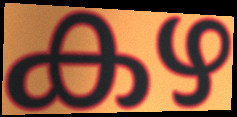
കഴ